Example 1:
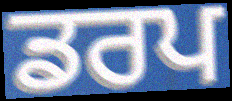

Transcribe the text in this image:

ਡਰਪ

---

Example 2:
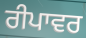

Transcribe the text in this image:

ਰੀਪਾਵਰ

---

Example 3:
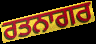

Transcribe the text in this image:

ਰਤਨਾਗਰ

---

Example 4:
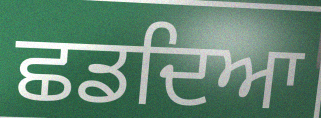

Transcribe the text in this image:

ਛਡਦਿਆ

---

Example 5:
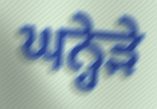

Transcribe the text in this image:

ਘਨ੍ਹੇੜੇ